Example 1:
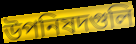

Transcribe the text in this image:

উপনিষদগুলি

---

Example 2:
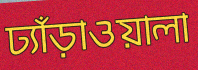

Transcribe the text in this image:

ঢ্যাঁড়াওয়ালা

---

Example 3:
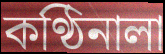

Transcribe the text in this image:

কণ্ঠিনালা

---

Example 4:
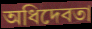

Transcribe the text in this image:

অধিদেবতা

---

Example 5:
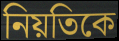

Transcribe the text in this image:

নিয়তিকে